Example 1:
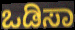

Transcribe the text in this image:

ಒಡಿಸಾ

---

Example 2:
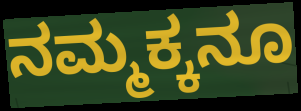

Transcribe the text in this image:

ನಮ್ಮಕ್ಕನೂ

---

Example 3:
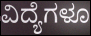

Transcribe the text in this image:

ವಿದ್ಯೆಗಳೂ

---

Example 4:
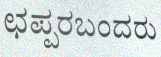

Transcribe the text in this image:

ಛಪ್ಪರಬಂದರು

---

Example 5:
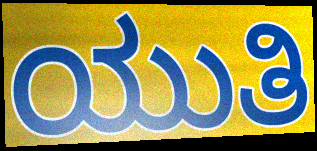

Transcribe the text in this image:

ಯುತಿ